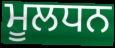
ਮੂਲਧਨ